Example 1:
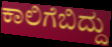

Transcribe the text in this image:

ಕಾಲಿಗೆಬಿದ್ದು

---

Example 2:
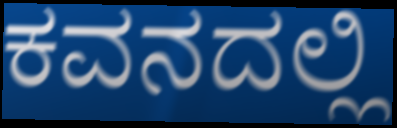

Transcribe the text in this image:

ಕವನದಲ್ಲಿ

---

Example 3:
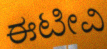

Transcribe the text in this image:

ಈಟೀವಿ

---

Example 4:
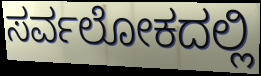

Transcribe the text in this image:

ಸರ್ವಲೋಕದಲ್ಲಿ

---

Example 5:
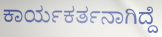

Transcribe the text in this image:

ಕಾರ್ಯಕರ್ತನಾಗಿದ್ದೆ